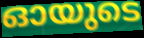
ഓയുടെ